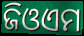
ଜିଓଏମ